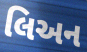
લિઅન